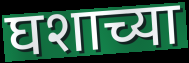
घशाच्या